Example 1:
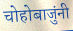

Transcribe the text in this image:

चोहोबाजुंनी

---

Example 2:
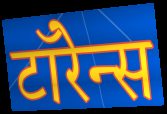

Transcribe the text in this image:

टॉरेन्स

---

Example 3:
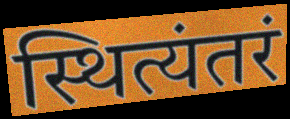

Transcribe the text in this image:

स्थित्यंतरं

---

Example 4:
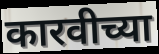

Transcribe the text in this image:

कारवीच्या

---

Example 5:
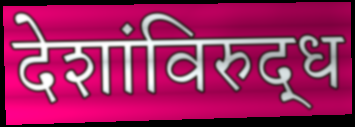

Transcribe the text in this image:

देशांविरुद्ध